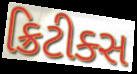
ક્રિટીક્સ